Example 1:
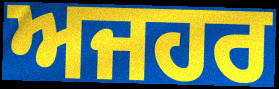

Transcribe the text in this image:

ਅਜਹਰ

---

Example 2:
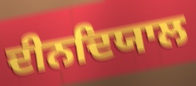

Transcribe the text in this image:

ਦੀਨਦਿਯਾਲ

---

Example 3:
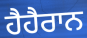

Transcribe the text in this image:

ਹੈਹੈਰਾਨ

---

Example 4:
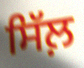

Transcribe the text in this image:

ਸਿੱਲ਼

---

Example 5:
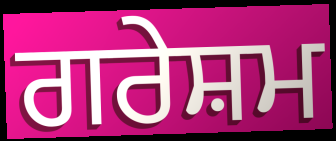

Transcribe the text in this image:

ਗਰੇਸ਼ਮ